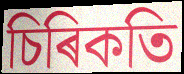
চিৰিকতি